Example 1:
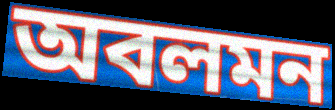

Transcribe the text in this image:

অবলমন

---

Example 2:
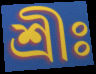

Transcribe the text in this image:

শ্রীঃ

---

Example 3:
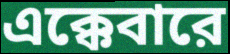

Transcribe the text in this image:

এক্কেবারে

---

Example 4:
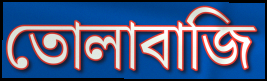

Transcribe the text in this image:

তোলাবাজি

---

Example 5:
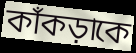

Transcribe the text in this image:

কাঁকড়াকে